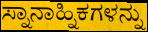
ಸ್ನಾನಾಹ್ನಿಕಗಳನ್ನು